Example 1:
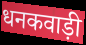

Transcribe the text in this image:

धनकवाड़ी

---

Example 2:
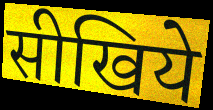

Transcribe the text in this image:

सीखिये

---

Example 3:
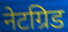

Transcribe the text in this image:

नेटग्रिड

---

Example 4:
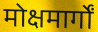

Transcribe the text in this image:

मोक्षमार्गों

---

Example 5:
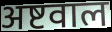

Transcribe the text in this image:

अष्टवाल